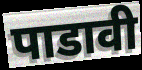
पाडावी